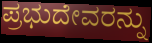
ಪ್ರಭುದೇವರನ್ನು